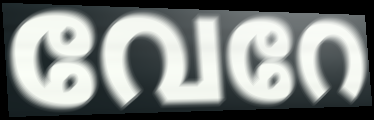
വേറേ